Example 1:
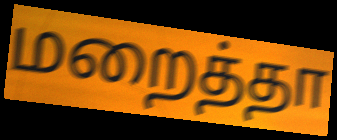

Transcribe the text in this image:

மறைத்தா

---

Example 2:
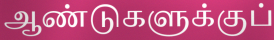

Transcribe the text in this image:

ஆண்டுகளுக்குப்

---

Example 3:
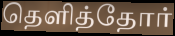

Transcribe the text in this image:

தெளித்தோர்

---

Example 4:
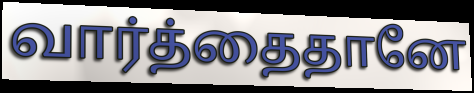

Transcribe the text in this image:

வார்த்தைதானே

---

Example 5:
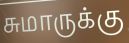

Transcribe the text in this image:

சுமாருக்கு